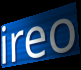
ireo